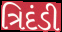
ત્રિદંડી